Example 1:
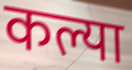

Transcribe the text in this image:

कल्या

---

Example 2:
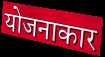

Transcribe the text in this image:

योजनाकार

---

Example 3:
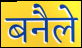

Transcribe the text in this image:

बनैले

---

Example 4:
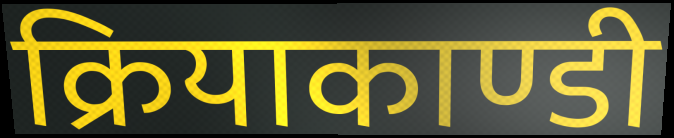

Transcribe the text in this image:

क्रियाकाण्डी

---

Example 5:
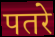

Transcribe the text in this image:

पतरे